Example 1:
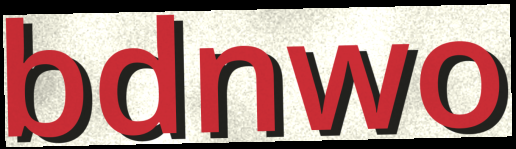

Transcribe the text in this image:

bdnwo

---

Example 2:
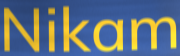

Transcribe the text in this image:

Nikam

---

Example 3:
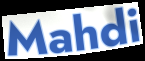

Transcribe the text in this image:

Mahdi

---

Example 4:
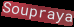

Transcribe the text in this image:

Soupraya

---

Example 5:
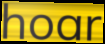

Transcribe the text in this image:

hoar